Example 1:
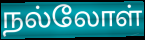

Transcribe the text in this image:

நல்லோள்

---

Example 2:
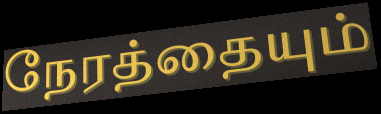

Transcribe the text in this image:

நேரத்தையும்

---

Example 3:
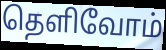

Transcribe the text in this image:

தெளிவோம்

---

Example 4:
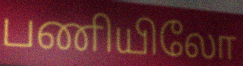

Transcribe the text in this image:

பணியிலோ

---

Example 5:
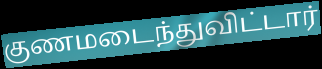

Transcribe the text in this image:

குணமடைந்துவிட்டார்